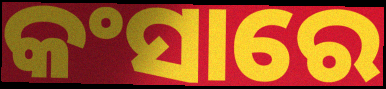
କଂସାରେ